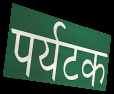
पर्यटक